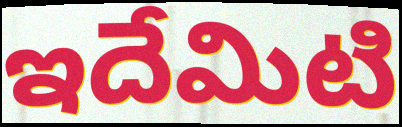
ఇదేమిటి